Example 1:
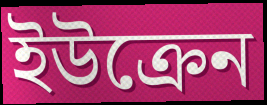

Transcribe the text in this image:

ইউক্রেন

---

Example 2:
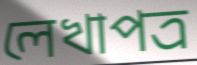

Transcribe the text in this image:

লেখাপত্র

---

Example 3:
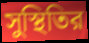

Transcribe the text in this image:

সুস্থিতির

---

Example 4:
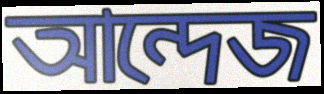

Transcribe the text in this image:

আন্দেজ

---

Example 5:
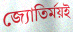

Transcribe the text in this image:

জ্যোতির্ময়ই